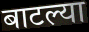
बाटल्या